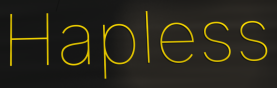
Hapless